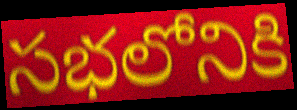
సభలోనికి